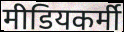
मीडियकर्मी